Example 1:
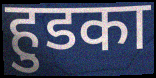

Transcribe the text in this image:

हुडका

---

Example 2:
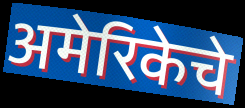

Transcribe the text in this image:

अमेरिकेचे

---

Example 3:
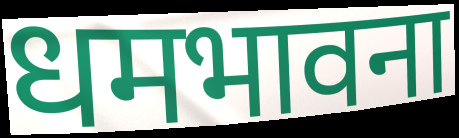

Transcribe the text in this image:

धमभावना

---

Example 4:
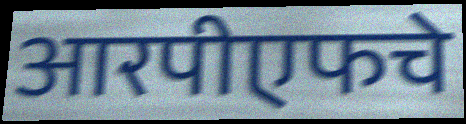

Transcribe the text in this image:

आरपीएफचे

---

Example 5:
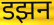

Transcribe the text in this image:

डझन